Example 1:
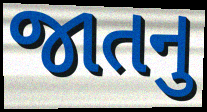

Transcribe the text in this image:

જાતનુ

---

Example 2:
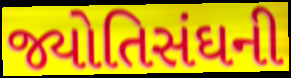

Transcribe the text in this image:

જ્યોતિસંઘની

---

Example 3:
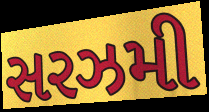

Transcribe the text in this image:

સરઝમી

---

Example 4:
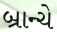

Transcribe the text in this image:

બ્રાન્ચે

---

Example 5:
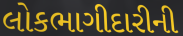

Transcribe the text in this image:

લોકભાગીદારીની